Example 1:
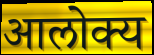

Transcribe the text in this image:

आलोक्य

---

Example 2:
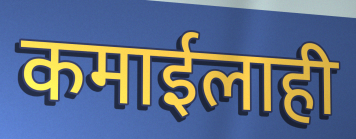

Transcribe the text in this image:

कमाईलाही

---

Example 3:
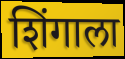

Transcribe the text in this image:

शिंगाला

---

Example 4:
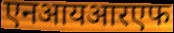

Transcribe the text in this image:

एनआयआरएफ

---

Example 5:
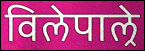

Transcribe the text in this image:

विलेपाल्रे